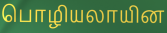
பொழியலாயின